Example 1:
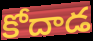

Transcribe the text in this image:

కోదాడ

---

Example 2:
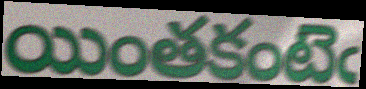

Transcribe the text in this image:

యింతకంటెఁ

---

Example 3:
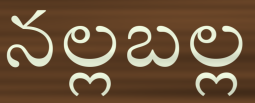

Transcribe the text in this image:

నల్లబల్ల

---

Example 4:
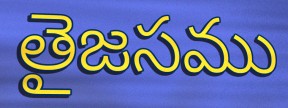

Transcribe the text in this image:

తైజసము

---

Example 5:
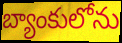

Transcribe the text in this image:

బ్యాంకులోను